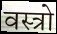
वस्त्रो